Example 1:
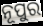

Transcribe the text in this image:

ନୂପୁର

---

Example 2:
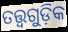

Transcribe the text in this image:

ତତ୍ତ୍ବଗୁଡ଼ିକ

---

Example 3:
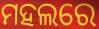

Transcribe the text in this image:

ମହଲରେ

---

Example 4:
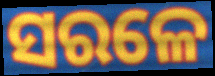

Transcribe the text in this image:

ସରଳେ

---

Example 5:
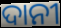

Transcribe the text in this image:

ଦାନୀ